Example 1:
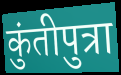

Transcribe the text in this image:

कुंतीपुत्रा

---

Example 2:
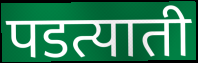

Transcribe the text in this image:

पडत्याती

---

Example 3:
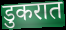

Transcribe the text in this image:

डुकरात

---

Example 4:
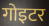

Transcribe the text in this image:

गोइटर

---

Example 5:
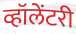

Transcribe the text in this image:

व्हॉलेंटरी